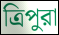
ত্রিপুরা